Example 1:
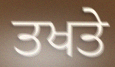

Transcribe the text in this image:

ਤਖਤੇ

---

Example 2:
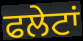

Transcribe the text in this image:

ਫਲੇਟਾਂ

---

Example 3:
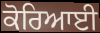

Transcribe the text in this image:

ਕੋਰਿਆਈ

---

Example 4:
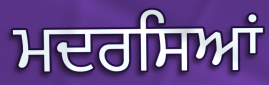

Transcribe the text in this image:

ਮਦਰਸਿਆਂ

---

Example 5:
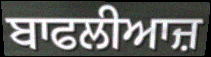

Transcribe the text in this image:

ਬਾਫਲੀਆਜ਼